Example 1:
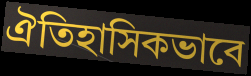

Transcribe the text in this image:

ঐতিহাসিকভাবে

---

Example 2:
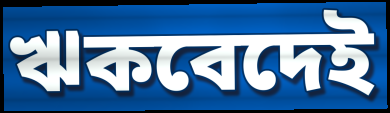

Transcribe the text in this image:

ঋকবেদেই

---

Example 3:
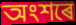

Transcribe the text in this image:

অংশৰে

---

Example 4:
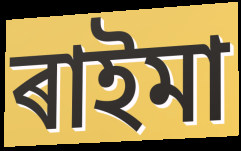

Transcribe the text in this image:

ৰাইমা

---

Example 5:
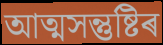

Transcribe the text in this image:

আত্মসন্তুষ্টিৰ